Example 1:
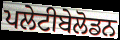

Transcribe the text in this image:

ਪਲੇਟੀਬੇਲੋਡਨ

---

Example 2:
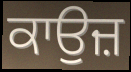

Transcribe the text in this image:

ਕਾਉਜ਼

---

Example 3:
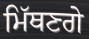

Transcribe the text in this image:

ਮਿੱਥਣਗੇ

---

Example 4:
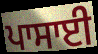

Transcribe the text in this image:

ਪਾਸਾਈ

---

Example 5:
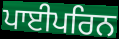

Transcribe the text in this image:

ਪਾਈਪਰਿਨ